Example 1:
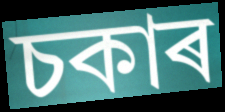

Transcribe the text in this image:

চকাৰ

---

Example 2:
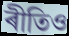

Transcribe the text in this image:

ৰীতিও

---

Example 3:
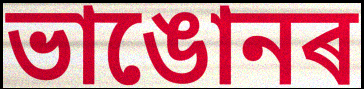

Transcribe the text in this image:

ভাঙোনৰ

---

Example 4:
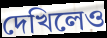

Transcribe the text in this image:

দেখিলেও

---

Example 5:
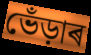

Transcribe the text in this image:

ভেঁড়াৰ